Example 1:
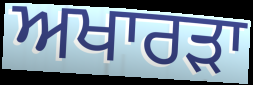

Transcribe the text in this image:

ਅਖਾਰੜਾ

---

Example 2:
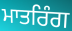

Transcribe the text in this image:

ਮਾਤਰਿੰਗ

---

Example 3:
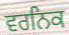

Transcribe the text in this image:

ਵਰਨਿਕ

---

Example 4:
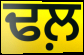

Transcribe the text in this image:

ਢਲ਼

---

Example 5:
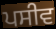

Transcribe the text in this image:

ਪਸੀਵ